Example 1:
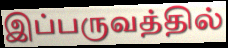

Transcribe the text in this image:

இப்பருவத்தில்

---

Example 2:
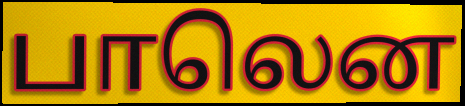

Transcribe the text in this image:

பாலென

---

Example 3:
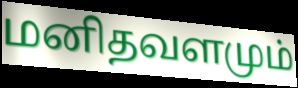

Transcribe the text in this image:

மனிதவளமும்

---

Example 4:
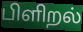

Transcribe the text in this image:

பிளிறல்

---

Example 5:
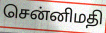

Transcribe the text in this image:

சென்னிமதி